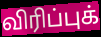
விரிப்புக்